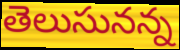
తెలుసునన్న